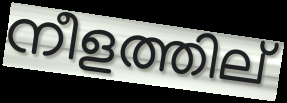
നീളത്തില്